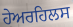
ਹੇਅਰਹਿਲਸ